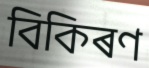
বিকিৰণ